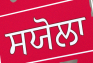
ਸਯੋਲਾ